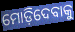
ମୋଡ଼ିଦେବାକୁ